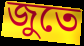
জুতে